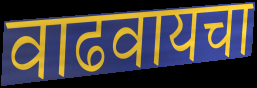
वाढवायचा